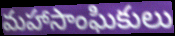
మహాసాంఘికులు